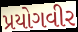
પ્રયોગવીર